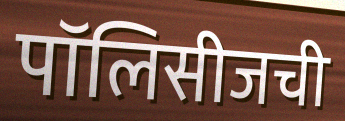
पॉलिसीजची